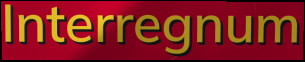
Interregnum